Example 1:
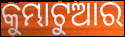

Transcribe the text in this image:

କୁମ୍ଭାଟୁଆର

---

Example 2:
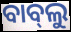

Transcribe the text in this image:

ବାବ୍‍ଲୁ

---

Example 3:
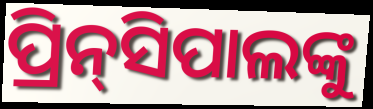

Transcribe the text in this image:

ପ୍ରିନ୍‌ସିପାଲଙ୍କୁ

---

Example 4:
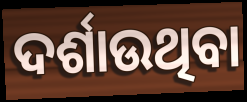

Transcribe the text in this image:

ଦର୍ଶାଉଥିବା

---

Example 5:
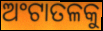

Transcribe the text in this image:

ଅଂଟାତଳକୁ